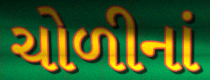
ચોળીનાં